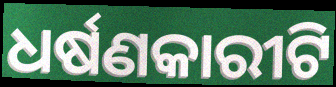
ଧର୍ଷଣକାରୀଟି